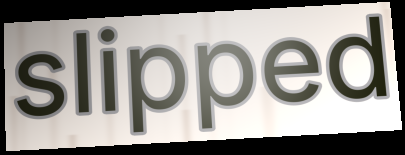
slipped